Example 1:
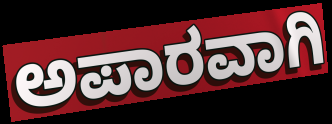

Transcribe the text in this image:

ಅಪಾರವಾಗಿ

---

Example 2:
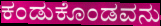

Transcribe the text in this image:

ಕಂಡುಕೊಂಡವನು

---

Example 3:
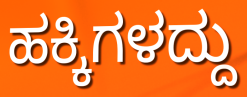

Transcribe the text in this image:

ಹಕ್ಕಿಗಳದ್ದು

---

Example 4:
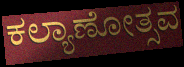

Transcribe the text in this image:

ಕಲ್ಯಾಣೋತ್ಸವ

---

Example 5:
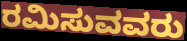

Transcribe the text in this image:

ರಮಿಸುವವರು